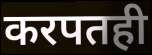
करपतही